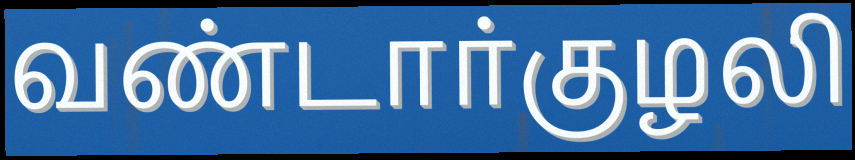
வண்டார்குழலி